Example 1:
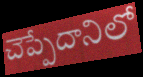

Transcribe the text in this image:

చెప్పేదానిలో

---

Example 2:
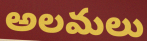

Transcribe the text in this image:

అలమలు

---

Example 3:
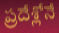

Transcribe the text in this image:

ప్రదేశ్లోనే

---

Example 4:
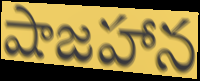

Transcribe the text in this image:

షాజహాన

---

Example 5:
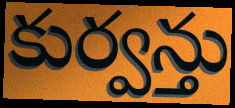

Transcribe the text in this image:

కుర్వన్తు